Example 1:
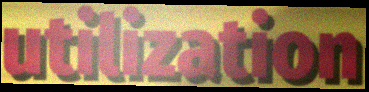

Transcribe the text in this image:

utilization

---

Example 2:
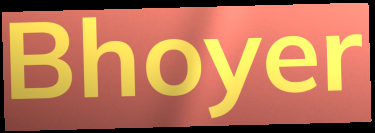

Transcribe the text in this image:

Bhoyer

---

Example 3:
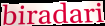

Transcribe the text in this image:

biradari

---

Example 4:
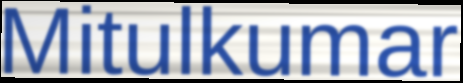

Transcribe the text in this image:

Mitulkumar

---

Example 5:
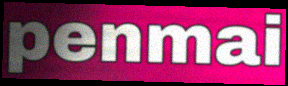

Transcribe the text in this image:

penmai